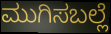
ಮುಗಿಸಬಲ್ಲೆ